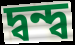
দ্বন্দ্ব